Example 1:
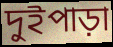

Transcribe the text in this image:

দুইপাড়া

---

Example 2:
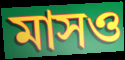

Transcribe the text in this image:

মাসও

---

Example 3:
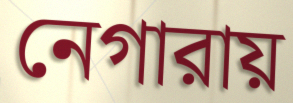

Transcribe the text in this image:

নেগারায়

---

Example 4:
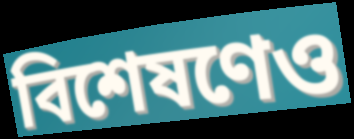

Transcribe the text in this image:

বিশেষণেও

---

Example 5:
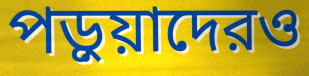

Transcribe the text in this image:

পড়ুয়াদেরও